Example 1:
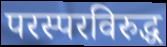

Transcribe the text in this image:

परस्परविरुद्ध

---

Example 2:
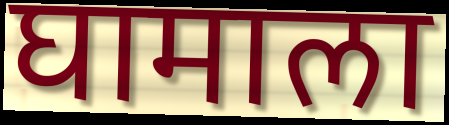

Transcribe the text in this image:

घामाला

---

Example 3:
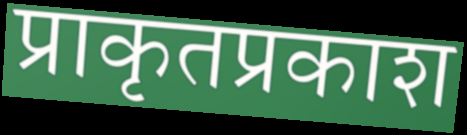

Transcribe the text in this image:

प्राकृतप्रकाश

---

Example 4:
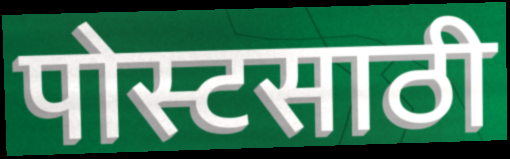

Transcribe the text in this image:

पोस्टसाठी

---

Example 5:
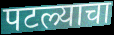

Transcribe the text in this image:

पटल्याचा